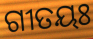
ଗୀତୟଃ